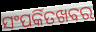
ସଂପର୍କିତଖବର